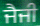
ਜੈਜੀ